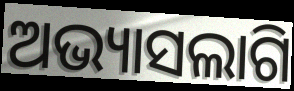
ଅଭ୍ୟାସଲାଗି